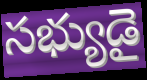
సభ్యుడై